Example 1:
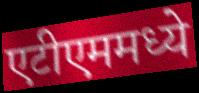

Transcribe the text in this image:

एटीएममध्ये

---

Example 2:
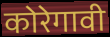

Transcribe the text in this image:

कोरेगावी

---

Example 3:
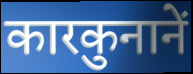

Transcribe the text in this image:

कारकुनानें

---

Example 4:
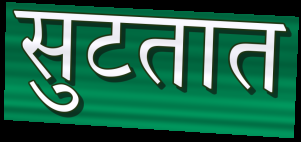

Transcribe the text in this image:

सुटतात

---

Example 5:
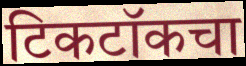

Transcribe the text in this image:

टिकटॉकचा